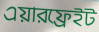
এয়ারফ্রেইট